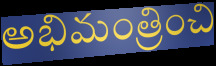
అభిమంత్రించి